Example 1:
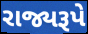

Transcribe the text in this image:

રાજ્યરૂપે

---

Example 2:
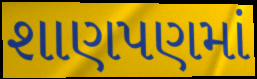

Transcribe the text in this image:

શાણપણમાં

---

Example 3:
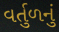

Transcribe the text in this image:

વર્તુળનું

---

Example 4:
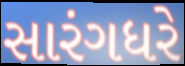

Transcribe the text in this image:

સારંગધરે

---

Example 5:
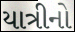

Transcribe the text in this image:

યાત્રીનો